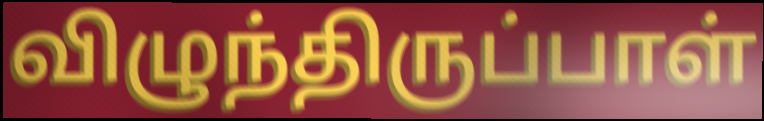
விழுந்திருப்பாள்